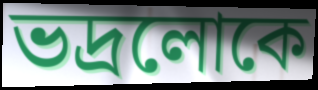
ভদ্ৰলোকে